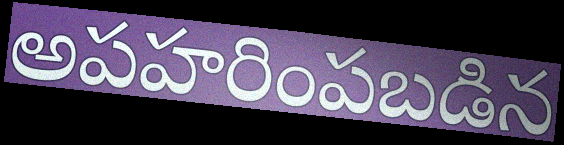
అపహరింపబడిన